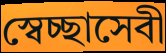
স্বেচ্ছাসেবী